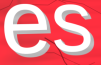
es